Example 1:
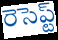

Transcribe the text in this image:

రెసెప్ట్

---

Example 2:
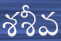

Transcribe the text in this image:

శశీవ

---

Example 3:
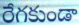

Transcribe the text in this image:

రేగకుండా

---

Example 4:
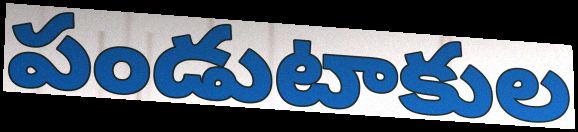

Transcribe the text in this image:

పండుటాకుల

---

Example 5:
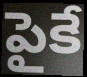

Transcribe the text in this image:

పైకే